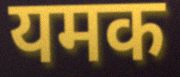
यमक